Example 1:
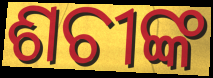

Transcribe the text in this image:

ଶଚୀଙ୍କ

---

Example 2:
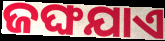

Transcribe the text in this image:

ଜଙ୍ଘଯାଏ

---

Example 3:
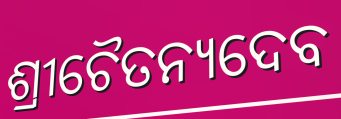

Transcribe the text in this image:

ଶ୍ରୀଚୈତନ୍ୟଦେବ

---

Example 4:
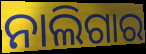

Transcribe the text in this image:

ନାଲିଗାର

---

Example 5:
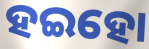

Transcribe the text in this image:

ହଇହୋ